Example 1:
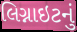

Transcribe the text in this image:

લિગ્નાઇટનું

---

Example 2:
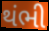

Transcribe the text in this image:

થંભી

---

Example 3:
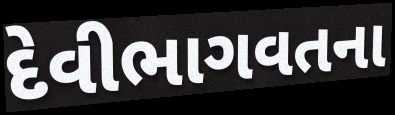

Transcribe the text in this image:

દેવીભાગવતના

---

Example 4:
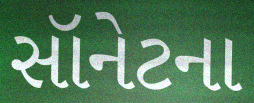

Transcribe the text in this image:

સૉનેટના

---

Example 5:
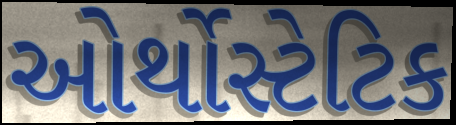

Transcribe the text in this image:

ઓર્થોસ્ટેટિક